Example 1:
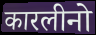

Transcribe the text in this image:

कारलीनो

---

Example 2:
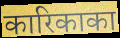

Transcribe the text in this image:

कारिकाका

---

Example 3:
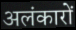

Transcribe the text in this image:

अलंकारों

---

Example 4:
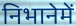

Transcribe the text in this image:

निभानेमें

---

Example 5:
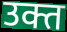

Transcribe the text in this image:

उक्‍त